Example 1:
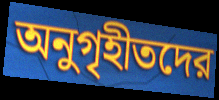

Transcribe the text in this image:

অনুগৃহীতদের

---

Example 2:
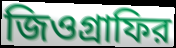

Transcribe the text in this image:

জিওগ্রাফির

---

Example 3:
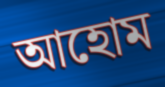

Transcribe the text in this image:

আহোম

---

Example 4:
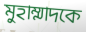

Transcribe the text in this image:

মুহাম্মাদকে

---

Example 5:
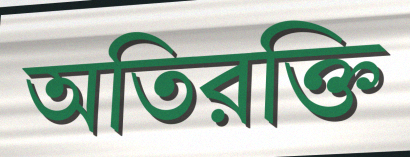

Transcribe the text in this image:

অতিরক্তি